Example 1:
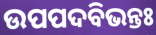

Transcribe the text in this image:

ଉପପଦବିଭନ୍ତଃ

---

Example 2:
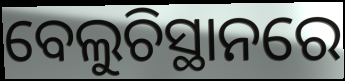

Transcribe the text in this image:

ବେଲୁଚିସ୍ଥାନରେ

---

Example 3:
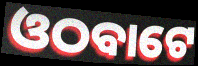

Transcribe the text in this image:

ଓଠବାଟେ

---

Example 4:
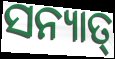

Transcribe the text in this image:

ସନ୍ୟାତ୍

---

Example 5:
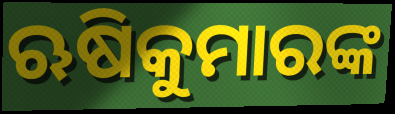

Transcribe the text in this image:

ଋଷିକୁମାରଙ୍କ